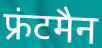
फ्रंटमैन